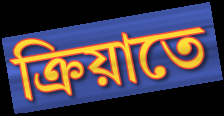
ক্রিয়াতে